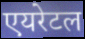
एयरेटल